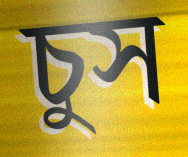
চুস